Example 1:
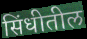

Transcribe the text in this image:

सिंधीतील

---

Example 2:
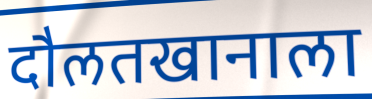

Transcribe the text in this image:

दौलतखानाला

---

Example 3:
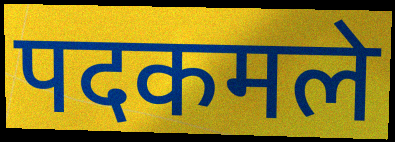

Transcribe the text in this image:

पदकमले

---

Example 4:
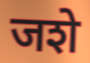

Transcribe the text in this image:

जशे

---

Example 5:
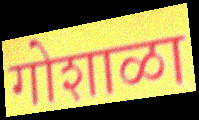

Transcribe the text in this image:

गोशाळा